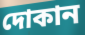
দোকান